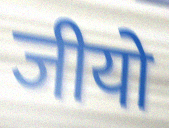
जीयो